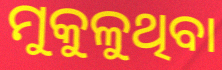
ମୁକୁଳୁଥିବା